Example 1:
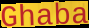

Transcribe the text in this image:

Ghaba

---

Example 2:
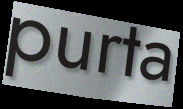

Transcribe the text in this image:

purta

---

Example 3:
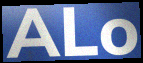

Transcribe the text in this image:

ALo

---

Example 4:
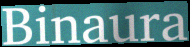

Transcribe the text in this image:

Binaura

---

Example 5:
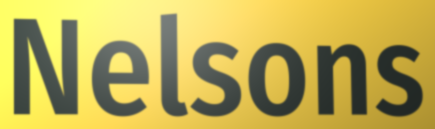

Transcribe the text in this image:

Nelsons